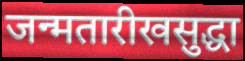
जन्मतारीखसुद्धा